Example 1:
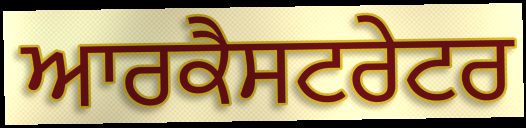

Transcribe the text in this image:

ਆਰਕੈਸਟਰੇਟਰ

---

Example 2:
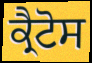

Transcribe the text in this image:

ਕ੍ਰੈਟੋਸ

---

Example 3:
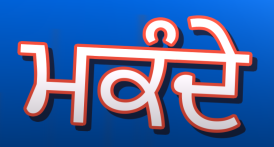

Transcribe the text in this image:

ਮਕੰਦੇ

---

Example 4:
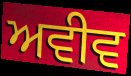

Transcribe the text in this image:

ਅਵੀਵ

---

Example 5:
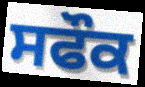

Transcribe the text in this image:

ਸਫੌਕ